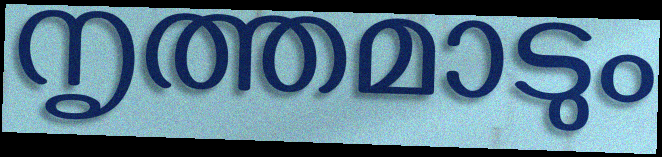
നൃത്തമാടും